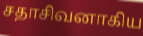
சதாசிவனாகிய